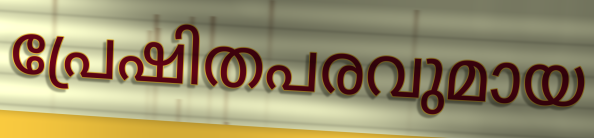
പ്രേഷിതപരവുമായ